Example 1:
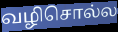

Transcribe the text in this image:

வழிசொல்ல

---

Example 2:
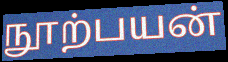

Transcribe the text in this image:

நூற்பயன்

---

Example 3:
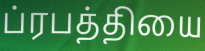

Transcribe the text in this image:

ப்ரபத்தியை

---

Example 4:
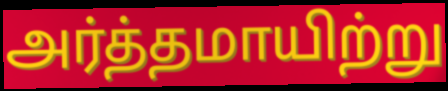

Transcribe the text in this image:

அர்த்தமாயிற்று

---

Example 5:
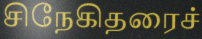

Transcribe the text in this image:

சிநேகிதரைச்